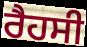
ਰੈਹਸੀ